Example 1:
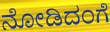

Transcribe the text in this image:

ನೋಡಿದಂಗೆ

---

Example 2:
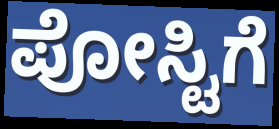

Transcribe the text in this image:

ಪೋಸ್ಟಿಗೆ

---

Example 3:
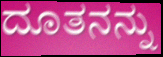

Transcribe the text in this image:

ದೂತನನ್ನು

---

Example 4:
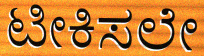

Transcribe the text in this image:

ಟೀಕಿಸಲೇ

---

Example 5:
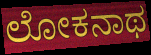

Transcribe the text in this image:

ಲೋಕನಾಥ